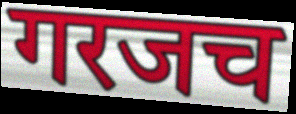
गरजच